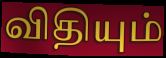
விதியும்